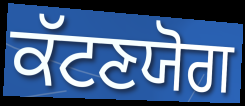
ਕੱਟਣਯੋਗ